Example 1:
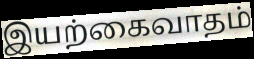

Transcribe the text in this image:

இயற்கைவாதம்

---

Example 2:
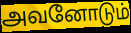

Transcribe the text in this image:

அவனோடும்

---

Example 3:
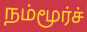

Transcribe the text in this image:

நம்மூர்ச்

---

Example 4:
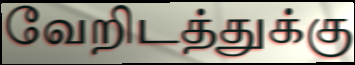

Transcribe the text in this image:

வேறிடத்துக்கு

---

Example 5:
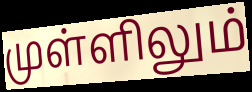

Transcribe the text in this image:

முள்ளிலும்